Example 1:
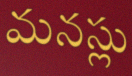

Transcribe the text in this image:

మనస్లు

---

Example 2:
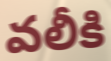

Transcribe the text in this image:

వలీకి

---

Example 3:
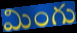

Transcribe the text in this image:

మింగు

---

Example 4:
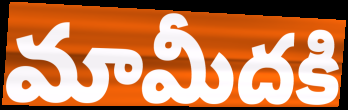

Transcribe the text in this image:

మామీదకి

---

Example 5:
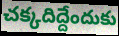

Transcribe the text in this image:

చక్కదిద్దేందుకు